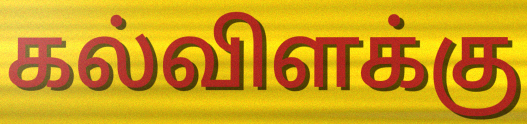
கல்விளக்கு